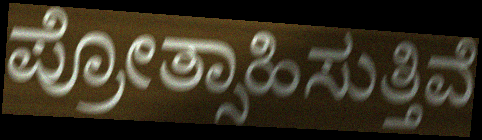
ಪ್ರೋತ್ಸಾಹಿಸುತ್ತಿವೆ